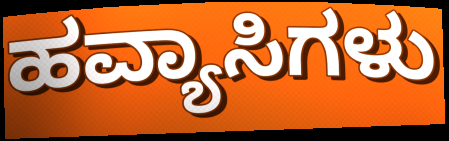
ಹವ್ಯಾಸಿಗಳು